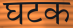
घटक